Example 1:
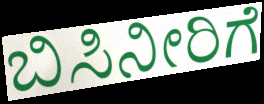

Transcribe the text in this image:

ಬಿಸಿನೀರಿಗೆ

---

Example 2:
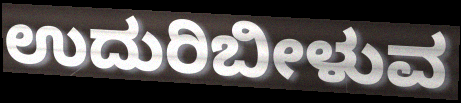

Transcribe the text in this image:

ಉದುರಿಬೀಳುವ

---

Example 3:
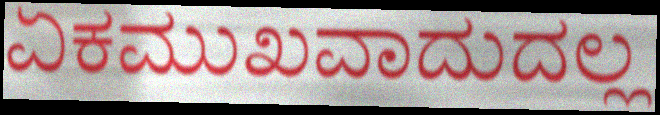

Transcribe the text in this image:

ಏಕಮುಖವಾದುದಲ್ಲ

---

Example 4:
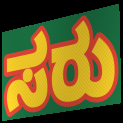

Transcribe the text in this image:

ಸರು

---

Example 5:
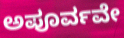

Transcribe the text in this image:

ಅಪೂರ್ವವೇ